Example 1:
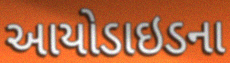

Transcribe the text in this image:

આયોડાઇડના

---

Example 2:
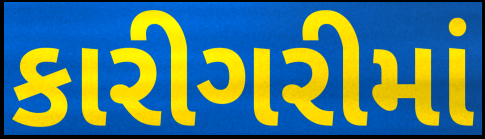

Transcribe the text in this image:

કારીગરીમાં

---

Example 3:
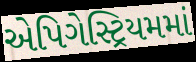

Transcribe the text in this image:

એપિગેસ્ટ્રિયમમાં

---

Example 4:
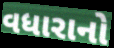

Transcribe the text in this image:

વધારાનો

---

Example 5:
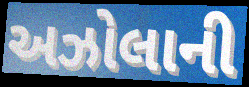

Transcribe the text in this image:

અઝોલાની